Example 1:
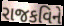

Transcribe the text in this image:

રાજકવિને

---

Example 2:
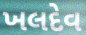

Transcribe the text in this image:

ખલદેવ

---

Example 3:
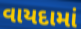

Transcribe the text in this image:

વાયદામાં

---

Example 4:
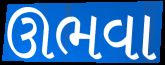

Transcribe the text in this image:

ઊભવા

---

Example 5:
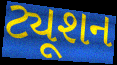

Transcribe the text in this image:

ટ્યૂશન